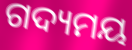
ଗଦ୍ୟମୟ